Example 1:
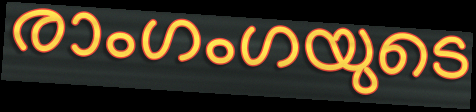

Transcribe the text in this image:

രാംഗംഗയുടെ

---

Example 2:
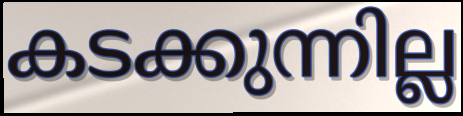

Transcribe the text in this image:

കടക്കുന്നില്ല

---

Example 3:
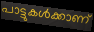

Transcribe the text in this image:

പാട്ടുകൾക്കാണ്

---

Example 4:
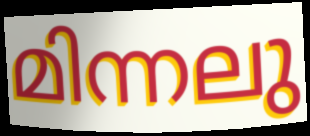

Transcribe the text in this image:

മിന്നലു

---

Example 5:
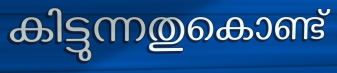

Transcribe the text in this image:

കിട്ടുന്നതുകൊണ്ട്